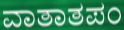
ವಾತಾತಪಂ